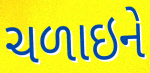
ચળાઇને